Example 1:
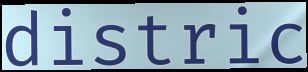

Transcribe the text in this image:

distric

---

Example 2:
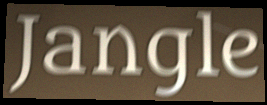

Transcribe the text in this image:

Jangle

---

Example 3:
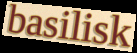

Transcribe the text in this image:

basilisk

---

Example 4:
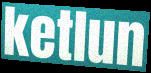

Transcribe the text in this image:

ketlun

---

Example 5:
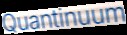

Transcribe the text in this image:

Quantinuum